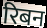
रिबन